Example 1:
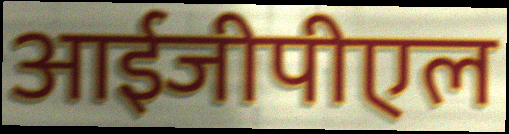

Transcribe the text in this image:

आईजीपीएल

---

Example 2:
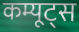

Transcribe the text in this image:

कम्यूट्स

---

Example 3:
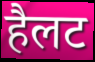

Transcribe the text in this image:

हैलट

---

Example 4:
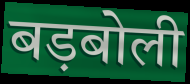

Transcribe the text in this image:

बड़बोली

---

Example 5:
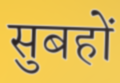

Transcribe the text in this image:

सुबहों